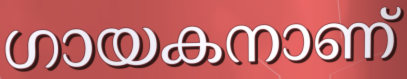
ഗായകനാണ്